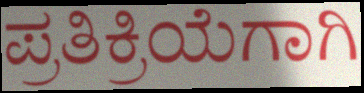
ಪ್ರತಿಕ್ರಿಯೆಗಾಗಿ